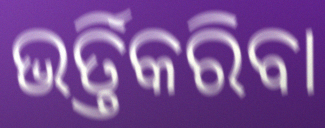
ଭର୍ତ୍ତିକରିବା